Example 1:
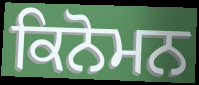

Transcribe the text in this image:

ਕਿਨੋਮਨ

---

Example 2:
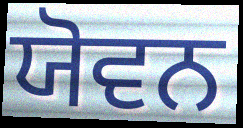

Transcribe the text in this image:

ਯੋਵਨ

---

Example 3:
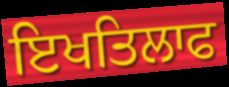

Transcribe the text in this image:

ਇਖਤਿਲਾਫ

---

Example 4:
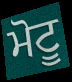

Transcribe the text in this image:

ਮੋਟੂ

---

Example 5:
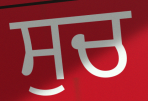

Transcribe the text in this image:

ਸੁਚ